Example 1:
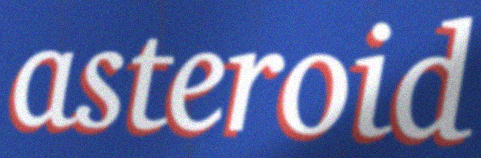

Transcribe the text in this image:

asteroid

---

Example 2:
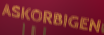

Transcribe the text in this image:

ASKORBIGEN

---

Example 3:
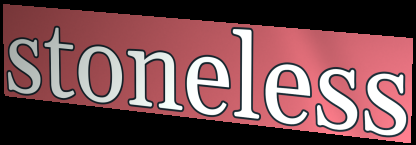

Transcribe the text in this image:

stoneless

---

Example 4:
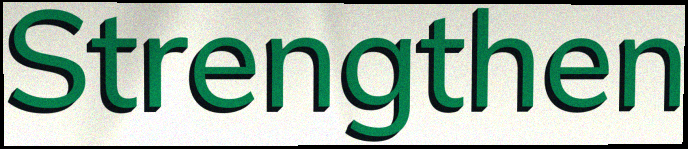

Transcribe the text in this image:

Strengthen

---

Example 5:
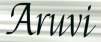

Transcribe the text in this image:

Aruvi